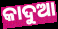
କାଦୁଆ